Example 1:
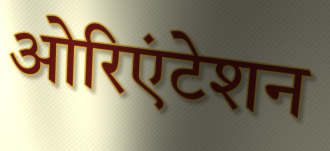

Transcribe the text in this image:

ओरिएंटेशन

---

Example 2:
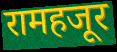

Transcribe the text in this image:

रामहजूर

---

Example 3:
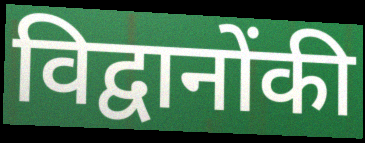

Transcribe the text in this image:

विद्वानोंकी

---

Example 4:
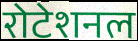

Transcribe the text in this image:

रोटेशनल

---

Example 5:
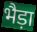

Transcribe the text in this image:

भैड़ा